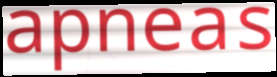
apneas